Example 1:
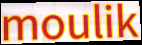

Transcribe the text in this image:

moulik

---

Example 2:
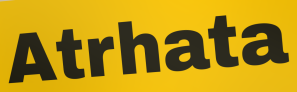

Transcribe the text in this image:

Atrhata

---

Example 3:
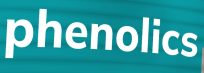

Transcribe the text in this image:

phenolics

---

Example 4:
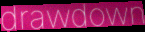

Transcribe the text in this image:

drawdown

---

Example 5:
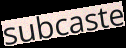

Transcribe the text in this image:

subcaste